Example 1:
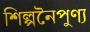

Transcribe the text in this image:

শিল্পনৈপুণ্য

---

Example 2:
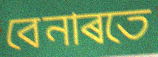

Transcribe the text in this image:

বেনাৰতে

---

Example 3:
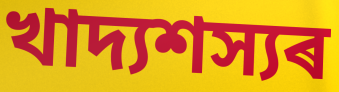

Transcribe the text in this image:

খাদ্যশস্যৰ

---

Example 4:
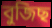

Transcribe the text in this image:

বুজিছ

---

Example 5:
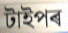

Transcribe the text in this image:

টাইপৰ